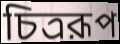
চিত্ররূপ